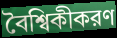
বৈশ্বিকীকরণ